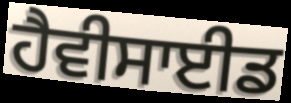
ਹੈਵੀਸਾਈਡ